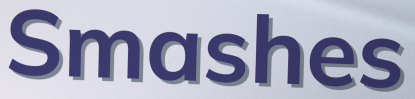
Smashes